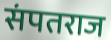
संपतराज